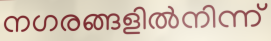
നഗരങ്ങളിൽനിന്ന്